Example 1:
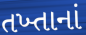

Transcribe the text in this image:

તખ્તાનાં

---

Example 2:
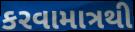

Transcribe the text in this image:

કરવામાત્રથી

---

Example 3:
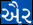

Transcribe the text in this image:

ઐર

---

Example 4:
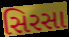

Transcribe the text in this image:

સિરસા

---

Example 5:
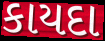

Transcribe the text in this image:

કાયદા